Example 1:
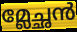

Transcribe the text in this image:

മ്ലേച്ഛൻ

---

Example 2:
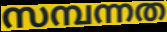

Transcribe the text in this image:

സമ്പന്നത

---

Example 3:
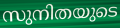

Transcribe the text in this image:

സുനിതയുടെ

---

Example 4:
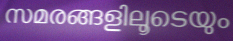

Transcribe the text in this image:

സമരങ്ങളിലൂടെയും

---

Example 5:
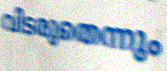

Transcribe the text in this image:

വിടരുതെന്നും